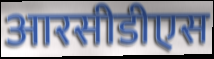
आरसीडीएस